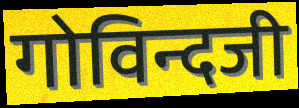
गोविन्दजी